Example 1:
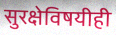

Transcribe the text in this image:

सुरक्षेविषयीही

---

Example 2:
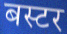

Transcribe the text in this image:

बस्टर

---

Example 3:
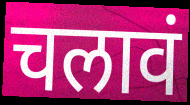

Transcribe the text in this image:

चलावं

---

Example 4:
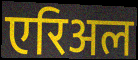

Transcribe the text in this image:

एरिअल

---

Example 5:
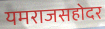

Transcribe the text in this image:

यमराजसहोदर